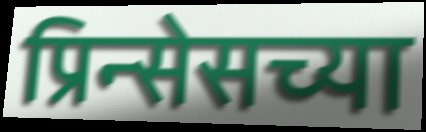
प्रिन्सेसच्या